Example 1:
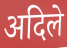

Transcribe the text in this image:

अदिले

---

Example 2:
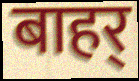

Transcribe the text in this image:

बाहर्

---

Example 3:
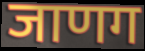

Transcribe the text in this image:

जाणग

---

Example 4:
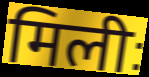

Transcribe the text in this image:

मिलीः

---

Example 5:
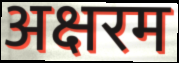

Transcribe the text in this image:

अक्षरम